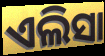
ଏଲିସା